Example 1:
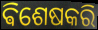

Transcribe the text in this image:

ଵିଶେଷକରି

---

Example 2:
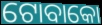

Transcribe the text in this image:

ଟୋବାକୋ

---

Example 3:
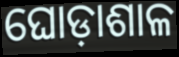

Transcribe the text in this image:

ଘୋଡ଼ାଶାଳ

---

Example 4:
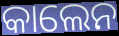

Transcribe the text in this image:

କାଲେନ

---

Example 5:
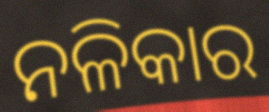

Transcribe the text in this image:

ନଳିକାର